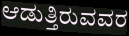
ಆಡುತ್ತಿರುವವರ